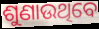
ଶୁଣାଉଥିବେ